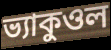
ভ্যাকুওল